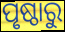
ପୃଷ୍ଠାରୁ